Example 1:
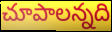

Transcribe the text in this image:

చూపాలన్నది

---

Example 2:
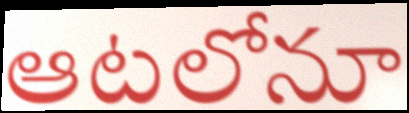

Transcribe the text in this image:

ఆటలోనూ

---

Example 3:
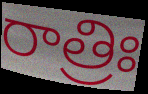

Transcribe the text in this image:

రాత్రిః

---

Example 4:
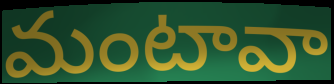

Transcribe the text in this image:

మంటావా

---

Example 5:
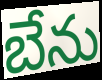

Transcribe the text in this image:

బేను